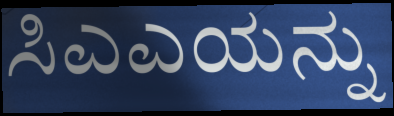
ಸಿಎಎಯನ್ನು